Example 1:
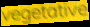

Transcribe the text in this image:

vegetative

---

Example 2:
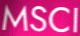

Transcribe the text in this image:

MSCI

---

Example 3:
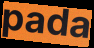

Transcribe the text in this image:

pada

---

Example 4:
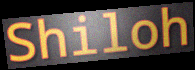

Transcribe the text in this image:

Shiloh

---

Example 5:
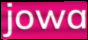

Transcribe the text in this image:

jowa